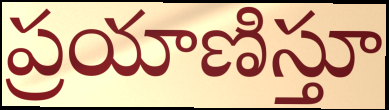
ప్రయాణిస్తూ